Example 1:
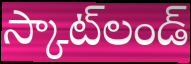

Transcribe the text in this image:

స్కాట్‌లండ్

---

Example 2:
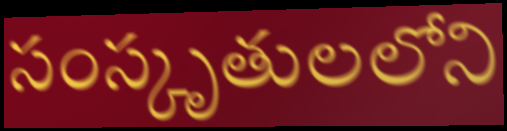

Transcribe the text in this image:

సంస్కృతులలోని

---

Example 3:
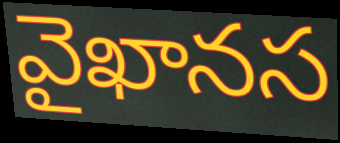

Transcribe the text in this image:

వైఖానస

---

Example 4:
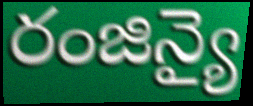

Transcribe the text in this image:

రంజిన్యై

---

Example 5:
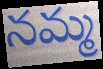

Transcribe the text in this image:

నమ్మ